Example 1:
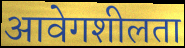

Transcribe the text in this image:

आवेगशीलता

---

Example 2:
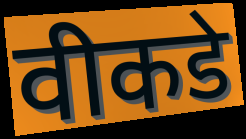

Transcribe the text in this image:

वीकडे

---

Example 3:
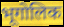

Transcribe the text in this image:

भूगोलिक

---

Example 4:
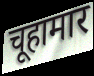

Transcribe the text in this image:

चूहामार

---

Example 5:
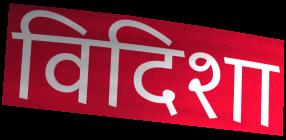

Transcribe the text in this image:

विदिशा